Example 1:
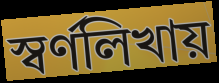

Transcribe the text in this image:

স্বর্ণলিখায়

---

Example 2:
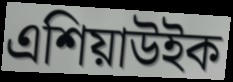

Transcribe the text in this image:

এশিয়াউইক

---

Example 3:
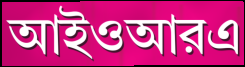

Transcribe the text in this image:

আইওআরএ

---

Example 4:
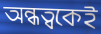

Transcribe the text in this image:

অন্ধত্বকেই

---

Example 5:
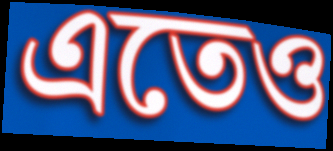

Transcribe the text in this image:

এতেও